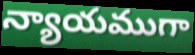
న్యాయముగా